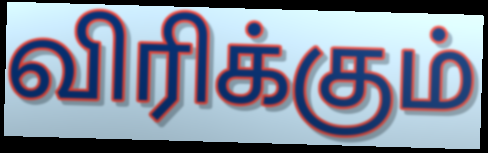
விரிக்கும்